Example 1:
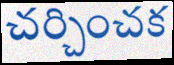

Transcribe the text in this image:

చర్చించక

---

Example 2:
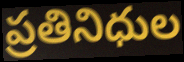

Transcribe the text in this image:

ప్రతినిధుల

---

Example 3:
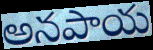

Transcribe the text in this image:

అనపాయ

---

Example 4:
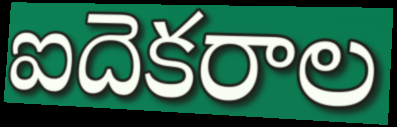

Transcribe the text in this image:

ఐదెకరాల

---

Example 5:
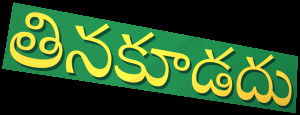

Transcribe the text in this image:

తినకూడదు